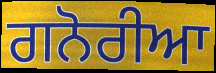
ਗਨੋਰੀਆ